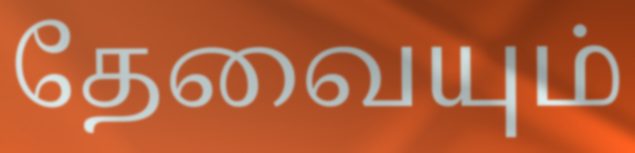
தேவையும்